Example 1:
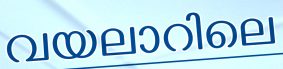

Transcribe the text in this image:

വയലാറിലെ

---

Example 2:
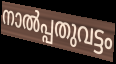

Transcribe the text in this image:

നാൽപ്പതുവട്ടം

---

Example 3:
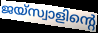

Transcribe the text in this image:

ജയ്സ്വാളിന്റെ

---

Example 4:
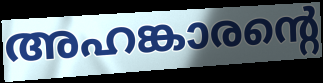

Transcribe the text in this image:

അഹങ്കാരന്റെ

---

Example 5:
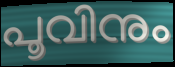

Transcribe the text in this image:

പൂവിനും